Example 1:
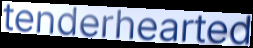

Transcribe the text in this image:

tenderhearted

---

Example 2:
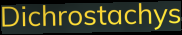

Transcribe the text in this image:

Dichrostachys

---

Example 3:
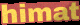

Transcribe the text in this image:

himat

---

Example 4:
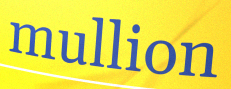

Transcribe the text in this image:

mullion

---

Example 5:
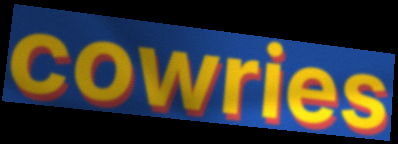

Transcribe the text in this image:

cowries